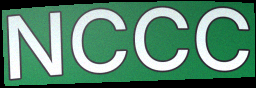
NCCC